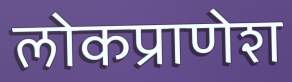
लोकप्राणेश